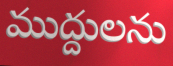
ముద్దులను